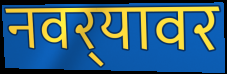
नवर्‍यावर